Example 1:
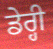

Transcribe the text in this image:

ਡੇਰ੍ਹੀ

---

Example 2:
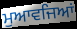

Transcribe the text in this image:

ਮੁਆਵਜਿਆਂ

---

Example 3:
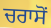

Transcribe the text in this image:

ਚਰਾਸੋਂ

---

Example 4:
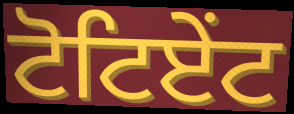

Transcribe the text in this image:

ਟੋਟਿਏਂਟ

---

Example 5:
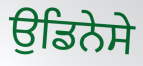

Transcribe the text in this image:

ਉਡਿਨੇਸੇ